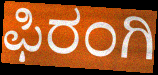
ಫಿರಂಗಿ